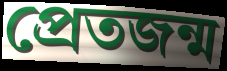
প্রেতজন্ম